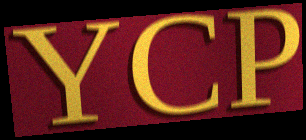
YCP